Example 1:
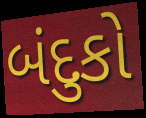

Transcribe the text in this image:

બંદુકો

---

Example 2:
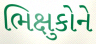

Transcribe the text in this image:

ભિક્ષુકોને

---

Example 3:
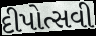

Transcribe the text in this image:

દીપોત્સવી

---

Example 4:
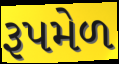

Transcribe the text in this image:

રૂપમેળ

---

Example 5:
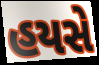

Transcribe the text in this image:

હયસે